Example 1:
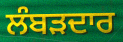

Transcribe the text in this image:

ਲੰਬੜਦਾਰ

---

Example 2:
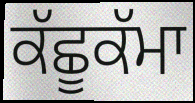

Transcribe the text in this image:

ਕੱਛੂਕੱਮਾ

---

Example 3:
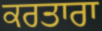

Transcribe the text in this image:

ਕਰਤਾਰਾ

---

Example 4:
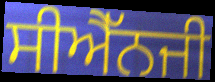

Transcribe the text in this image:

ਸੀਐੱਨਜੀ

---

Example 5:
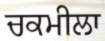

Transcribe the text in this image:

ਚਕਮੀਲਾ